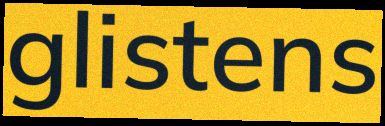
glistens